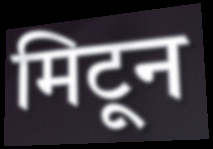
मिटून